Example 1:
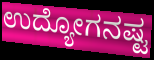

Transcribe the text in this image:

ಉದ್ಯೋಗನಷ್ಟ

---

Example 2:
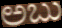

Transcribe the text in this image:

ಅಬು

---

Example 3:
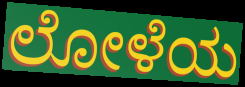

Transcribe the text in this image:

ಲೋಳೆಯ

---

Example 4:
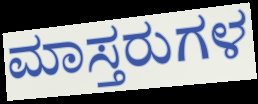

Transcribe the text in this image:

ಮಾಸ್ತರುಗಳ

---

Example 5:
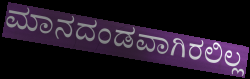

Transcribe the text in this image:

ಮಾನದಂಡವಾಗಿರಲಿಲ್ಲ